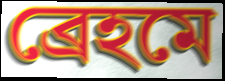
ব্রেহমে